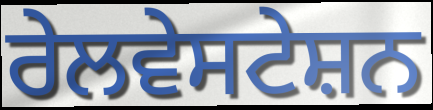
ਰੇਲਵੇਸਟੇਸ਼ਨ